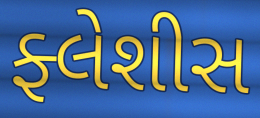
ફ્લેશીસ